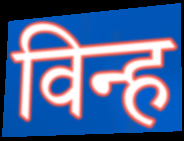
विन्ह